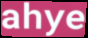
ahye